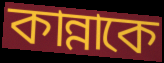
কান্নাকে